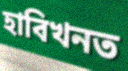
হাবিখনত